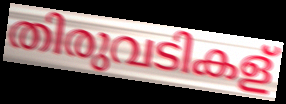
തിരുവടികള്